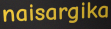
naisargika